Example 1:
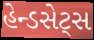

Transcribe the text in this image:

હેન્ડસેટ્સ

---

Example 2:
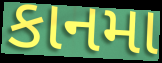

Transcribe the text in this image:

કાનમા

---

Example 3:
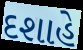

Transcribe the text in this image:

દશાહે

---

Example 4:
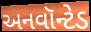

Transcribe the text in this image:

અનવૉન્ટેડ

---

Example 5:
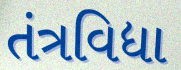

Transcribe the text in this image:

તંત્રવિદ્યા